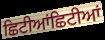
ਛਿਟੀਆਂਛਿਟੀਆਂ